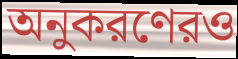
অনুকরণেরও